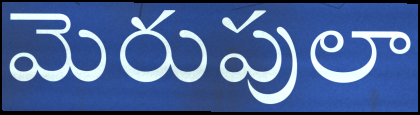
మెరుపులా